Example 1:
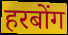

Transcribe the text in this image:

हरबोंग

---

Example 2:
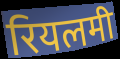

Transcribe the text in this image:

रियलमी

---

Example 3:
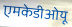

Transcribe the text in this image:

एमकेडीओयू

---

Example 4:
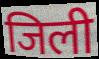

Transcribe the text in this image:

जिली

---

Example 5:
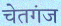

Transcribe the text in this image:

चेतगंज